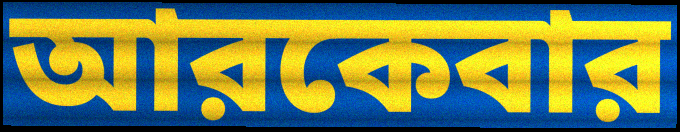
আরকেবার